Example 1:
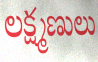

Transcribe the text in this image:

లక్ష్మణులు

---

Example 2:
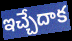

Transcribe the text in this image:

ఇచ్చేదాక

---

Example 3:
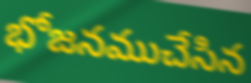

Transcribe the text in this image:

భోజనముచేసిన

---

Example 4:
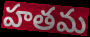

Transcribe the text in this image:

హతమ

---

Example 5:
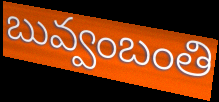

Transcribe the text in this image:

బువ్వంబంతి